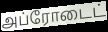
அப்ரோடைட்